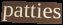
patties